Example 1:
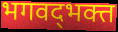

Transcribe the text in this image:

भगवद्भक्त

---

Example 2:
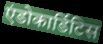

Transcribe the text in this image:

एंडोकार्डिटिस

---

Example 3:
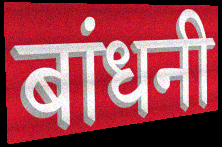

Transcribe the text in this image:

बांधनी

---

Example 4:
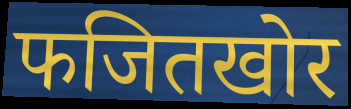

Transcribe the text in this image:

फजितखोर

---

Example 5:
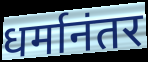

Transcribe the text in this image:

धर्मानंतर